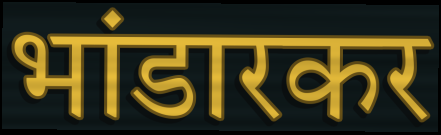
भांडारकर